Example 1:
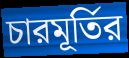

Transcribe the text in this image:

চারমূর্তির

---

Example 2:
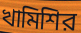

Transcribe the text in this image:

খামিশির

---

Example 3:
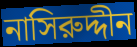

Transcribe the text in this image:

নাসিরুদ্দীন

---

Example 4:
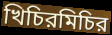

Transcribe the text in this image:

খিচিরমিচির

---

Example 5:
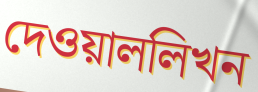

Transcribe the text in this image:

দেওয়াললিখন